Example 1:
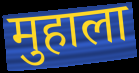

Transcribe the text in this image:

मुहाला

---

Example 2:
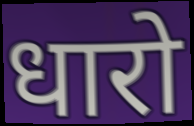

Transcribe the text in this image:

धारो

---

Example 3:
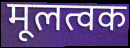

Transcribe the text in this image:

मूलत्वक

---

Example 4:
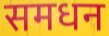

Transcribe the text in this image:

समधन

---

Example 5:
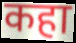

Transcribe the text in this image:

कहा